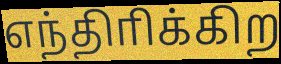
எந்திரிக்கிற